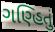
ગણ્હિતું